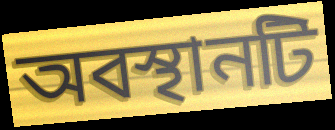
অবস্থানটি